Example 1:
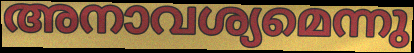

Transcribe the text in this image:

അനാവശ്യമെന്നു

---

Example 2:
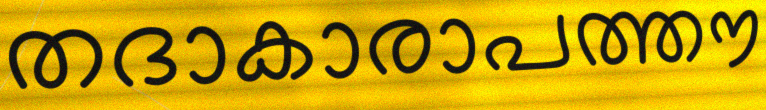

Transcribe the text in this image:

തദാകാരാപത്തൗ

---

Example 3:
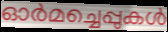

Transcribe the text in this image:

ഓർമച്ചെപ്പുകൾ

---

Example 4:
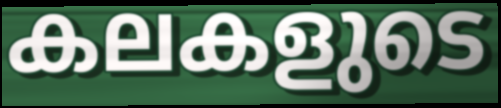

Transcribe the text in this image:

കലകളുടെ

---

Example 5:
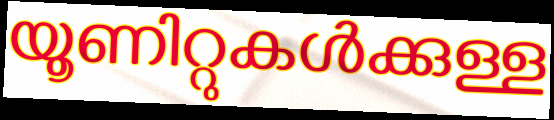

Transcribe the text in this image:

യൂണിറ്റുകൾക്കുള്ള